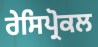
ਰੇਸਿਪ੍ਰੋਕਲ